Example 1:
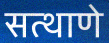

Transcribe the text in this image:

सत्थाणे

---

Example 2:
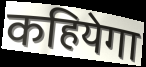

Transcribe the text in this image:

कहियेगा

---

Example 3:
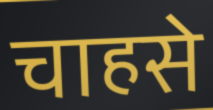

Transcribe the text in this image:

चाहसे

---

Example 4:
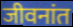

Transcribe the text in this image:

जीवनांत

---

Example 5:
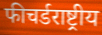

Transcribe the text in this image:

फीचर्डराष्ट्रीय